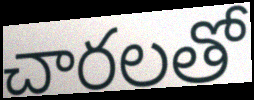
చారలతో